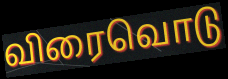
விரைவொடு